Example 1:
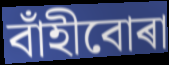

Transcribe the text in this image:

বাঁহীবোৰা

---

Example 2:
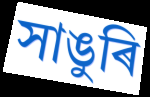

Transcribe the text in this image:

সাঙুৰি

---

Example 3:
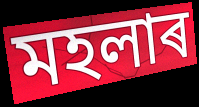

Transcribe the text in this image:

মহলাৰ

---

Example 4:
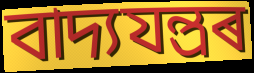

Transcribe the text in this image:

বাদ্যযন্ত্ৰৰ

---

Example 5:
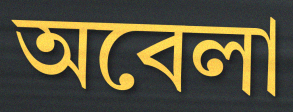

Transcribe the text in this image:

অবেলা